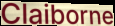
Claiborne